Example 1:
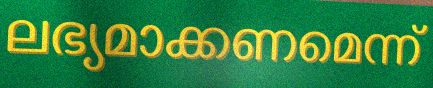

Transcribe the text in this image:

ലഭ്യമാക്കണമെന്ന്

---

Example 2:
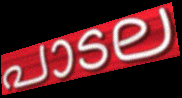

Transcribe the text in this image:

പാടല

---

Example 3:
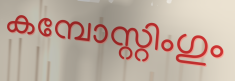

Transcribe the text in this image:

കമ്പോസ്റ്റിംഗും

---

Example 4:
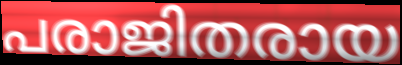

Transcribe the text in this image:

പരാജിതരായ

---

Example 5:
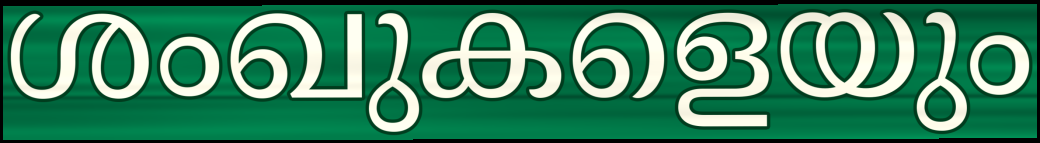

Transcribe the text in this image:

ശംഖുകളെയും